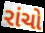
રાંચો